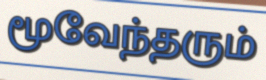
மூவேந்தரும்